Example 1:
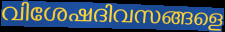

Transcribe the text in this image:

വിശേഷദിവസങ്ങളെ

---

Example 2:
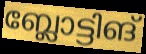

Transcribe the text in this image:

ബ്ലോട്ടിങ്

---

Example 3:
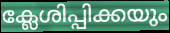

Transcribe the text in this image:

ക്ലേശിപ്പിക്കയും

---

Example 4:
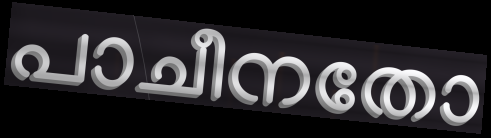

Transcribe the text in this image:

പാചീനതോ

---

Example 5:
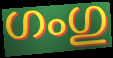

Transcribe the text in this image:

ഗംഗു